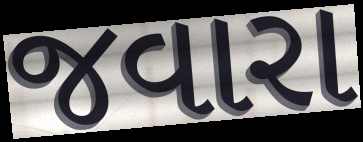
જવારા